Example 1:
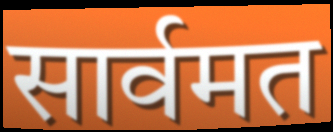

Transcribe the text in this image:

सार्वमत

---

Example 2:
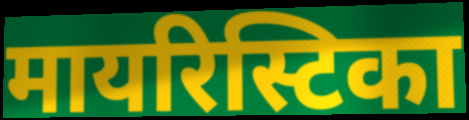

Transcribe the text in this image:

मायरिस्टिका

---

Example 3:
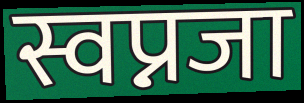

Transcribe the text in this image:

स्वप्नजा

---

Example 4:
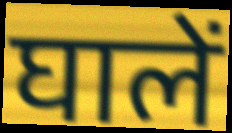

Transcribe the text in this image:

घालें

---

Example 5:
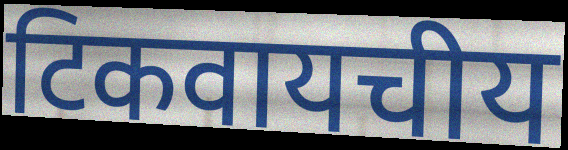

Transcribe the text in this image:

टिकवायचीय